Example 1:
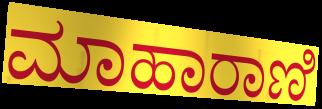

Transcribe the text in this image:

ಮಾಹಾರಾಣಿ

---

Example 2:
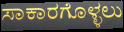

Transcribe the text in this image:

ಸಾಕಾರಗೊಳ್ಳಲು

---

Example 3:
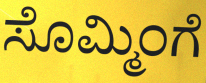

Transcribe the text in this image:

ಸೊಮ್ಮಿಂಗೆ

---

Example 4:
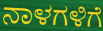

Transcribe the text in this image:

ನಾಳಗಳಿಗೆ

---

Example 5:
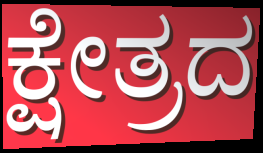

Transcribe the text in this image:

ಕ್ಷೇತ್ರದ